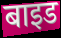
बाइड